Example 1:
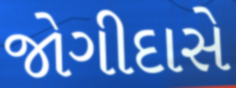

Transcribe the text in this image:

જોગીદાસે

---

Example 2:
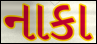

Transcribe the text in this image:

નાકા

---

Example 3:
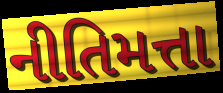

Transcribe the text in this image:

નીતિમત્તા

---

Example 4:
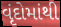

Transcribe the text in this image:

વૃંદોમાંથી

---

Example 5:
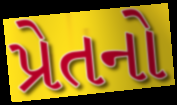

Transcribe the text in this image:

પ્રેતનો